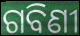
ଗବିଣୀ